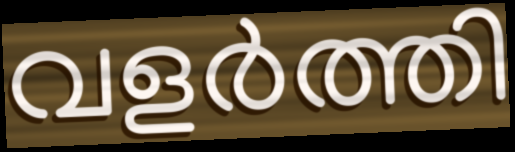
വളർത്തി